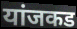
यांजकड